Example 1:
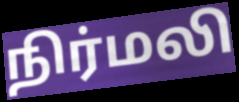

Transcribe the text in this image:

நிர்மலி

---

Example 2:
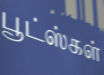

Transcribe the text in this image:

பூட்ஸ்கள்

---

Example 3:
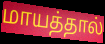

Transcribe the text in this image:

மாயத்தால்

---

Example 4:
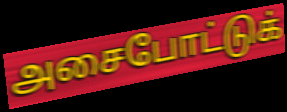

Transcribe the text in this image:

அசைபோட்டுக்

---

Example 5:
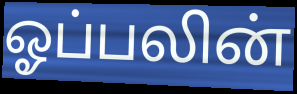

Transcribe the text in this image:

ஓப்பலின்